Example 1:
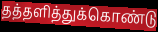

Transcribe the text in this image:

தத்தளித்துக்கொண்டு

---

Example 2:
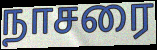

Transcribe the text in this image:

நாசரை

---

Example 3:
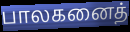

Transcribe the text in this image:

பாலகனைத்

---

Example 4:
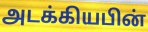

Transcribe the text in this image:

அடக்கியபின்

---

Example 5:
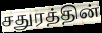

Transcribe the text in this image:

சதுரத்தின்